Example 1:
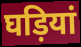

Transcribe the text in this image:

घड़ियां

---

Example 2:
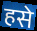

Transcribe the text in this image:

हसे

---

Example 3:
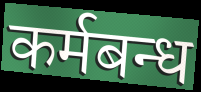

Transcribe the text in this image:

कर्मबन्ध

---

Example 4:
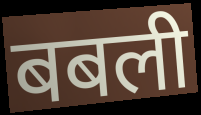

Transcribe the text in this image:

बबली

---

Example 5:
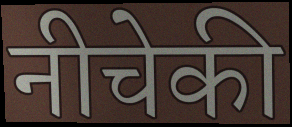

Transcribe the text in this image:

नीचेकी